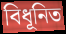
বিধূনিত